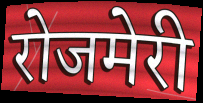
रोजमेरी